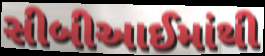
સીબીઆઈમાંથી